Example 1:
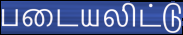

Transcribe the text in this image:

படையலிட்டு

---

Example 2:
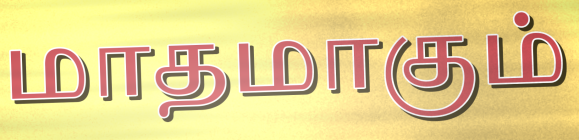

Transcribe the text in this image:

மாதமாகும்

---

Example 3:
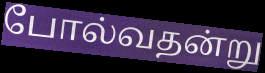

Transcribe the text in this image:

போல்வதன்று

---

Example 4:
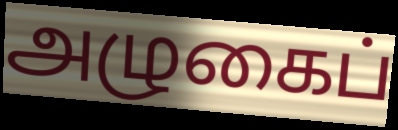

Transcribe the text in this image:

அழுகைப்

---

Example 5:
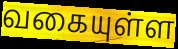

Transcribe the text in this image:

வகையுள்ள